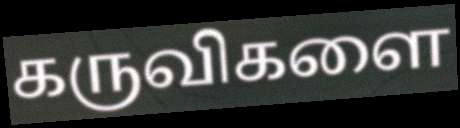
கருவிகளை